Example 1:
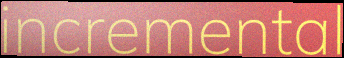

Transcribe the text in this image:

incremental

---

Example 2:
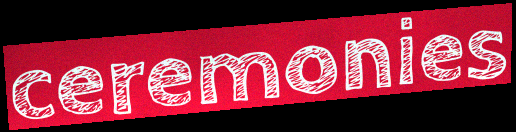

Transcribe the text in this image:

ceremonies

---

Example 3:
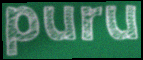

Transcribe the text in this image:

puru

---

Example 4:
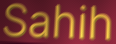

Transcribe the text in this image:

Sahih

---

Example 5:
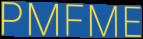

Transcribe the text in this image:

PMFME